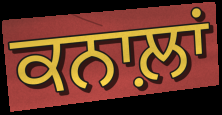
ਕਨਾਲ਼ਾਂ